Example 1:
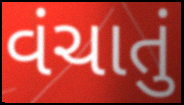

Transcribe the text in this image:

વંચાતું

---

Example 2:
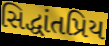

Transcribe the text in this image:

સિદ્ધાંતપ્રિય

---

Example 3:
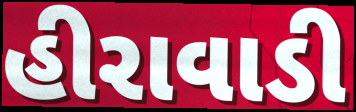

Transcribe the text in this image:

હીરાવાડી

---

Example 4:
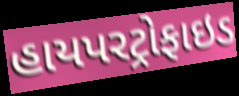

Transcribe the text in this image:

હાયપરટ્રોફાઇડ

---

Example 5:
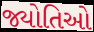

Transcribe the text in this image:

જ્યોતિઓ